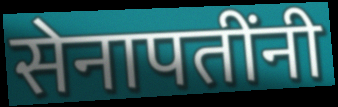
सेनापतींनी